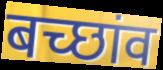
बच्छांव